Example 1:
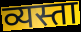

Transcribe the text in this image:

व्यस्ता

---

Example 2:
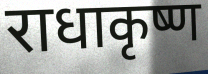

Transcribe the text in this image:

राधाकृष्ण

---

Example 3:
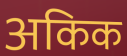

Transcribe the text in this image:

अकिक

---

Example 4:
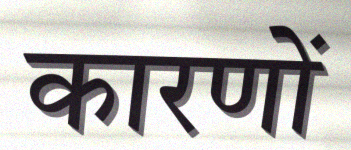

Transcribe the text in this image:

कारणों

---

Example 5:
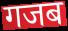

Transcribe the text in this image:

गजब